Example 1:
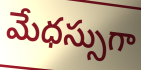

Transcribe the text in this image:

మేధస్సుగా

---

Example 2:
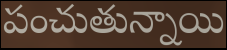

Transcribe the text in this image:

పంచుతున్నాయి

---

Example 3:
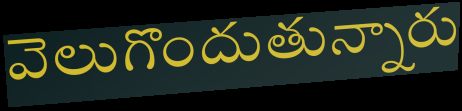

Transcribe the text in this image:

వెలుగొందుతున్నారు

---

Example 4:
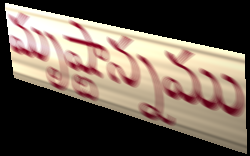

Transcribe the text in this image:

మృష్టాన్నము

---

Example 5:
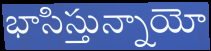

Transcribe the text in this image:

భాసిస్తున్నాయో